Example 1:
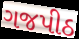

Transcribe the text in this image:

ગજપીઠ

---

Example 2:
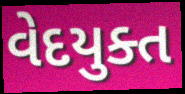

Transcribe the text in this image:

વેદયુક્ત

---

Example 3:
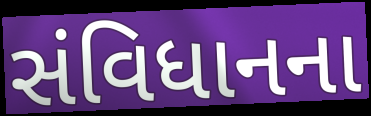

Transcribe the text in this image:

સંવિધાનના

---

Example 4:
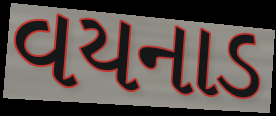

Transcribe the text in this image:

વયનાડ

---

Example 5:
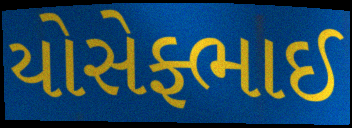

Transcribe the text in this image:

યોસેફ્ભાઈ